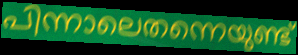
പിന്നാലെതന്നെയുണ്ട്